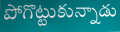
పోగొట్టుకున్నాడు